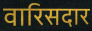
वारिसदार